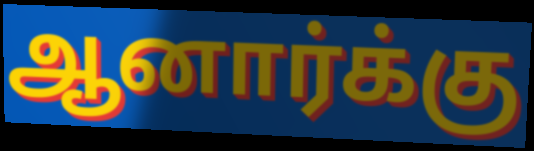
ஆனார்க்கு